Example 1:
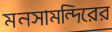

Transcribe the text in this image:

মনসামন্দিরের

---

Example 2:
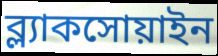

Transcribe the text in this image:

ব্ল্যাকসোয়াইন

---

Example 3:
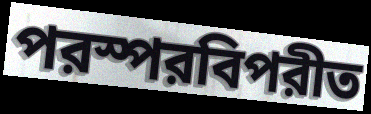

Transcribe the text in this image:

পরস্পরবিপরীত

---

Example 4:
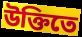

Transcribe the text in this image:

উক্তিতে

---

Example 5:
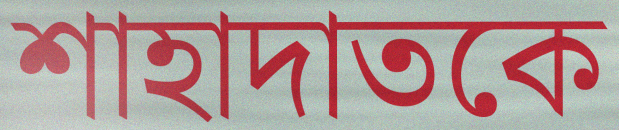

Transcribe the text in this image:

শাহাদাতকে